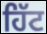
ਹਿੱਟ